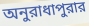
অনুরাধাপুরার